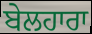
ਬੇਲਹਾਰਾ